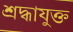
শ্রদ্ধাযুক্ত